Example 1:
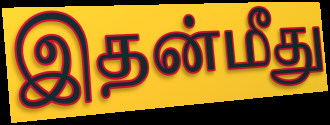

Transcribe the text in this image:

இதன்மீது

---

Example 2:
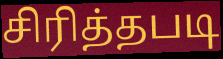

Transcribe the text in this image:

சிரித்தபடி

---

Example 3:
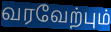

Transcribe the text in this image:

வரவேற்பும்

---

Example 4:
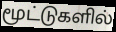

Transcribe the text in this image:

மூட்டுகளில்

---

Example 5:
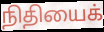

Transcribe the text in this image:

நிதியைக்